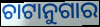
ଚାଟାନୁଗାର